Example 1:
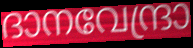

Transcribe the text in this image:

ദാനവേന്ദ്രാ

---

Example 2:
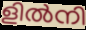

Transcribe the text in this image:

ളിൽനി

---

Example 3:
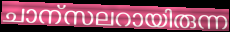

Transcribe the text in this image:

ചാന്സലറായിരുന്ന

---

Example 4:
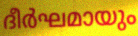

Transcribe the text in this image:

ദീർഘമായും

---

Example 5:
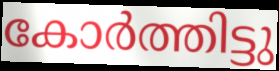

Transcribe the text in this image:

കോർത്തിട്ടു